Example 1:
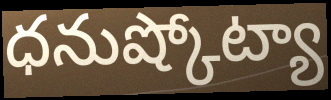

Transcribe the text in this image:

ధనుష్కోట్యా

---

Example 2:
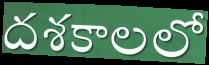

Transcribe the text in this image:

దశకాలలో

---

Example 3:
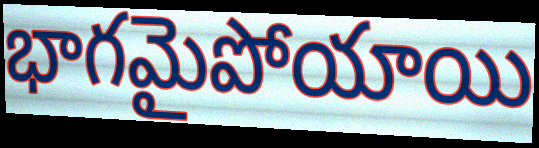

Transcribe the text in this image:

భాగమైపోయాయి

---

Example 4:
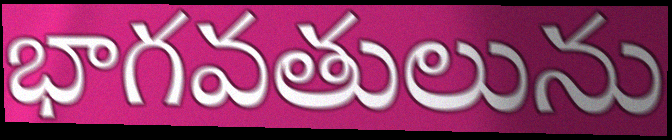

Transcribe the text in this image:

భాగవతులును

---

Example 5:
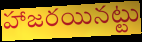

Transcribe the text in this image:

హాజరయినట్టు